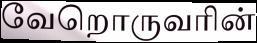
வேறொருவரின்